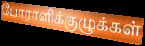
போராளிக்குழுக்கள்